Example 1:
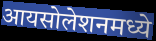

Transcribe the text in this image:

आयसोलेशनमध्ये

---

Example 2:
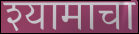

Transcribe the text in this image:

श्यामाचा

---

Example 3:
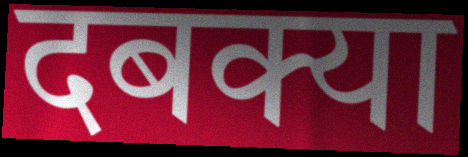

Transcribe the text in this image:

दबक्या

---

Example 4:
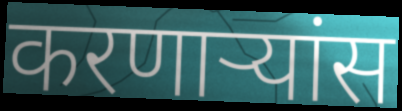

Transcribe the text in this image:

करणाऱ्यांस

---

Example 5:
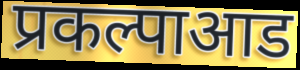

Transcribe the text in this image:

प्रकल्पाआड